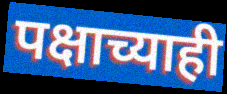
पक्षाच्याही